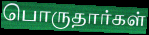
பொருதார்கள்